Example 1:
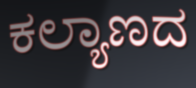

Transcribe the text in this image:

ಕಲ್ಯಾಣದ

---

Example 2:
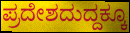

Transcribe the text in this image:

ಪ್ರದೇಶದುದ್ದಕ್ಕೂ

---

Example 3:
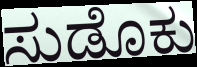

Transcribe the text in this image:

ಸುಡೊಕು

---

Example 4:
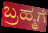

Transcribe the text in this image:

ಬ್ರಹ್ಮಗೆ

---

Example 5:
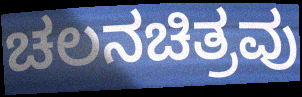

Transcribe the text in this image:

ಚಲನಚಿತ್ರವು